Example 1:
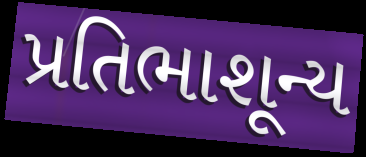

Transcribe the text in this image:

પ્રતિભાશૂન્ય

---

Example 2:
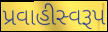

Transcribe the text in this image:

પ્રવાહીસ્વરૂપ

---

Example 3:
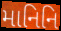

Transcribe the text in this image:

માનિનિ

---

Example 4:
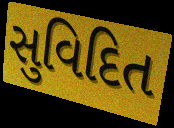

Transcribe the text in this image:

સુવિદિત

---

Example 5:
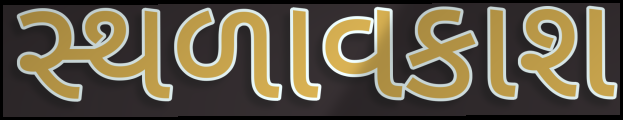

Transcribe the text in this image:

સ્થળાવકાશ